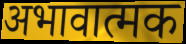
अभावात्मक